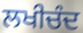
ਲਖੀਚੰਦ